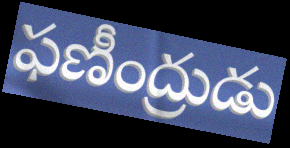
ఫణీంద్రుడు